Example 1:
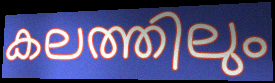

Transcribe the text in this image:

കലത്തിലും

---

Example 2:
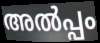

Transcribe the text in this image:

അൽപ്പം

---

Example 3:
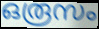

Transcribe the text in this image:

ഒരൂസം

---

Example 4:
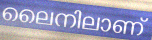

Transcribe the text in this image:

ലൈനിലാണ്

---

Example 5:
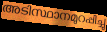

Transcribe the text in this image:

അടിസ്ഥാനമുറപ്പിച്ചു